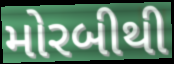
મોરબીથી